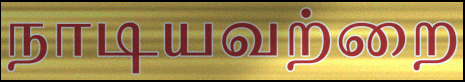
நாடியவற்றை